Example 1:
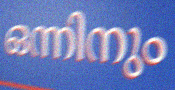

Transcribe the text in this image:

ഒന്നിനും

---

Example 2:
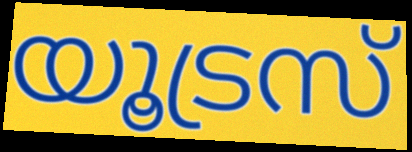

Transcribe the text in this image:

യൂട്രസ്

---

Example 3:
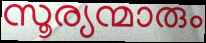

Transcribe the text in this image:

സൂര്യന്മാരും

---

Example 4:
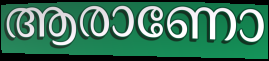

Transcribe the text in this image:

ആരാണോ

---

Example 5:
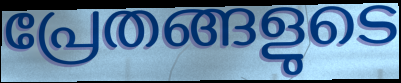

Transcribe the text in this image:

പ്രേതങ്ങളുടെ